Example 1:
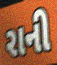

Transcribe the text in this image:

રાની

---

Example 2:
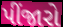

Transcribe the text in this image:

પીંજારો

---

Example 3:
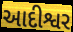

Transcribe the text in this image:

આદીશ્વર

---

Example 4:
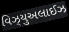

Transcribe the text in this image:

વિઝ્યુઅલાઈઝ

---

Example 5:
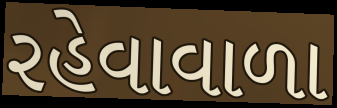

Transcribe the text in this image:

રહેવાવાળા